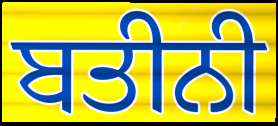
ਬਤੀਨੀ